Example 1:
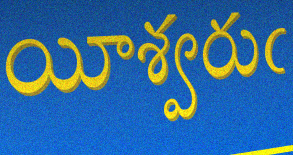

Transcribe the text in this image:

యీశ్వరుఁ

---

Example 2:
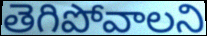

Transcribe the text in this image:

తెగిపోవాలని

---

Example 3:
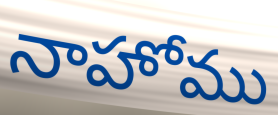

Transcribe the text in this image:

నాహోము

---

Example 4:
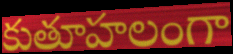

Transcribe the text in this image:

కుతూహలంగా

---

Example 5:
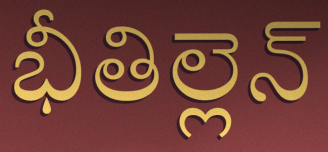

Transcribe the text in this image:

భీతిల్లెన్